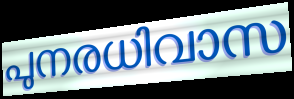
പുനരധിവാസ